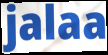
jalaa